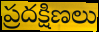
ప్రదక్షిణలు